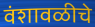
वंशावळीचे